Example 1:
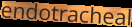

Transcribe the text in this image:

endotracheal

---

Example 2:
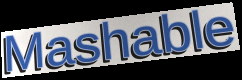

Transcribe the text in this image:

Mashable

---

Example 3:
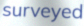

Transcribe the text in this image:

surveyed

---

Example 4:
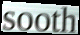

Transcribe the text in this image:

sooth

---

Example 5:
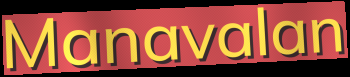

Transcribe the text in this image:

Manavalan